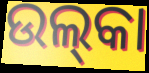
ଉଲ୍‌କା